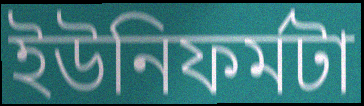
ইউনিফর্মটা